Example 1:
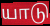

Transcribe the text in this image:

யாடு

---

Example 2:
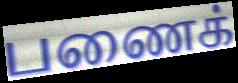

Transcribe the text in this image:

பணைக்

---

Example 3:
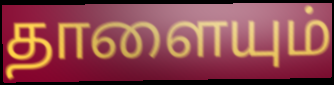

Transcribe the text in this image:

தாளையும்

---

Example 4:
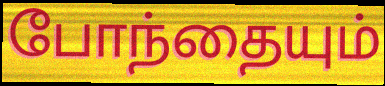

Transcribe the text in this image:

போந்தையும்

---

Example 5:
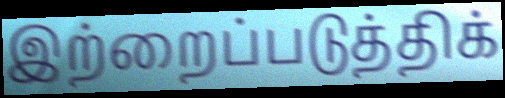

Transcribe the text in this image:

இற்றைப்படுத்திக்